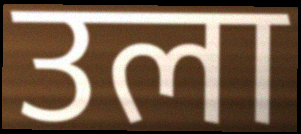
उला